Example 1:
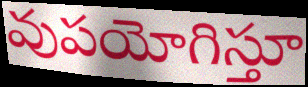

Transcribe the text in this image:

వుపయోగిస్తూ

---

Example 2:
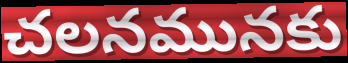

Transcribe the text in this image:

చలనమునకు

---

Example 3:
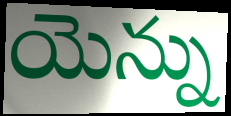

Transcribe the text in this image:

యెన్ను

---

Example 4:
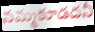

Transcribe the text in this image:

నమ్మకూడదనీ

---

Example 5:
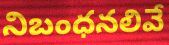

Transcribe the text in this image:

నిబంధనలివే